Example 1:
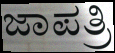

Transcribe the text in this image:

ಜಾಪತ್ರಿ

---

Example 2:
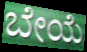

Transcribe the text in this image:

ಬೇಯೆ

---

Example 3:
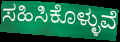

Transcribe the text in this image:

ಸಹಿಸಿಕೊಳ್ಳುವೆ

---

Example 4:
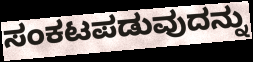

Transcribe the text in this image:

ಸಂಕಟಪಡುವುದನ್ನು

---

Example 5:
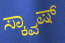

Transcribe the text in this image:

ಸ್ಕ್ವಾಷ್